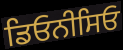
ਡਿਓਨੀਸਿਓ